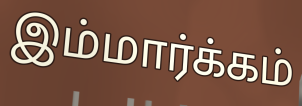
இம்மார்க்கம்